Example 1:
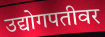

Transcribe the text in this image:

उद्योगपतीवर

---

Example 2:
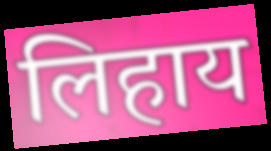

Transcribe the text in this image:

लिहाय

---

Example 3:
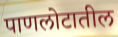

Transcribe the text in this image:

पाणलोटातील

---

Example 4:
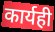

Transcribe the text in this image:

कार्यही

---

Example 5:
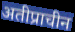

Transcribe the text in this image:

अतीप्राचीन